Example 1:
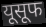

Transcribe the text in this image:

यूसूफ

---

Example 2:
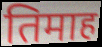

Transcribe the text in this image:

तिमाह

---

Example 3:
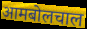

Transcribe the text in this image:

आमबोलचाल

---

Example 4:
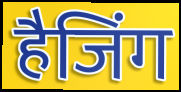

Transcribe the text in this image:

हैजिंग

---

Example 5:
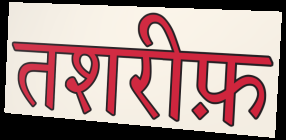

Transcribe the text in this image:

तशरीफ़